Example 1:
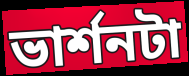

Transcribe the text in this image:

ভার্শনটা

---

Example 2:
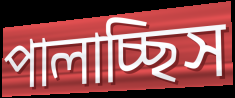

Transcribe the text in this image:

পালাচ্ছিস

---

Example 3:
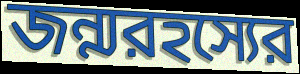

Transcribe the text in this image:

জন্মরহস্যের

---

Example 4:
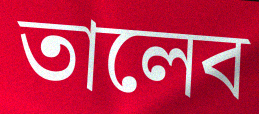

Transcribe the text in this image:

তালেব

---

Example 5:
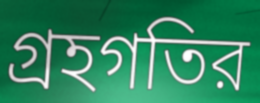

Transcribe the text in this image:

গ্রহগতির